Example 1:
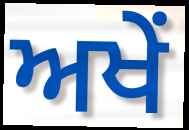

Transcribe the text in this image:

ਅਖੇਂ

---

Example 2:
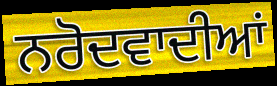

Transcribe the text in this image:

ਨਰੋਦਵਾਦੀਆਂ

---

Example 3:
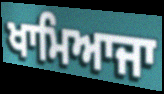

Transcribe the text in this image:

ਖਾਮਿਆਜਾ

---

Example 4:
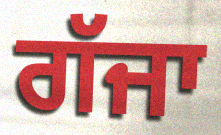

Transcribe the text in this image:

ਗੱਜਾ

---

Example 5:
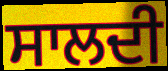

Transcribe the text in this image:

ਸਾਲਦੀ